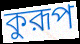
কুরূপ